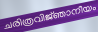
ചരിത്രവിജ്‌ഞാനീയം